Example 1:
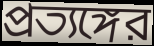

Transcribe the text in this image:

প্রত্যঙ্গের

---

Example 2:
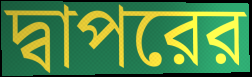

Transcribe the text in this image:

দ্বাপরের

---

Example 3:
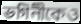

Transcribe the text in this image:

ভগিনীকেও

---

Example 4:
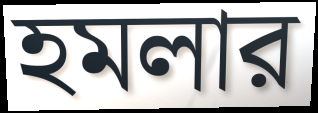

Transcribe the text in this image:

হমলার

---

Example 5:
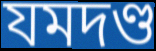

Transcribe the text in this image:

যমদণ্ড